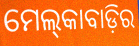
ମେଲ୍‌କାବାଡ଼ିର